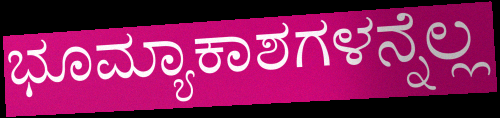
ಭೂಮ್ಯಾಕಾಶಗಳನ್ನೆಲ್ಲ